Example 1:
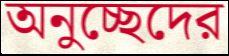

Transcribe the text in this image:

অনুচ্ছেদের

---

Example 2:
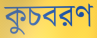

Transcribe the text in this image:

কুচবরণ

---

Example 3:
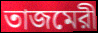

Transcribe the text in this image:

তাজমেরী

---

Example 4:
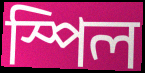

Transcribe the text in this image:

স্পিল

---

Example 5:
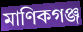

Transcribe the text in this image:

মাণিকগঞ্জ